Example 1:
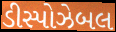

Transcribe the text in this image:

ડીસ્પોઝેબલ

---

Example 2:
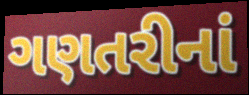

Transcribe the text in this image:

ગણતરીનાં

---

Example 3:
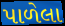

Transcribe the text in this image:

પાળેલા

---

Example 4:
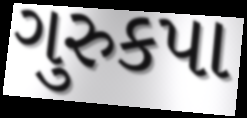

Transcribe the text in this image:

ગુરુકપા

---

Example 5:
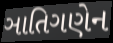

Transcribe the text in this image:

ઞાતિગણેન